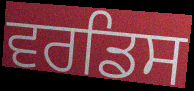
ਵਰਡਿਸ